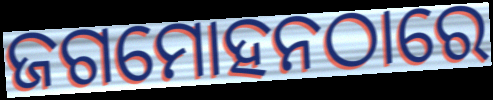
ଜଗମୋହନଠାରେ